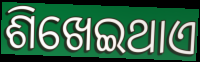
ଶିଖେଇଥାଏ